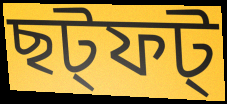
ছট্‌ফট্